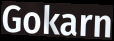
Gokarn